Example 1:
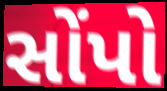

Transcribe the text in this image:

સોંપો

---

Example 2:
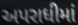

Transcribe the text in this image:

અપરાધીમાં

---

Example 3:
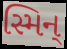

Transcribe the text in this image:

સ્મિન્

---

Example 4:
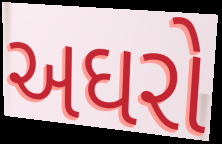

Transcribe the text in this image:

અઘરો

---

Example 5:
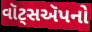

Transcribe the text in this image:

વૉટ્સઍપનો